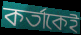
কর্তাকেই